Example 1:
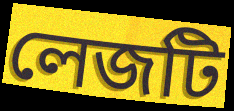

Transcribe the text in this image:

লেজটি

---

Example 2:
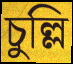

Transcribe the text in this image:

চুল্লি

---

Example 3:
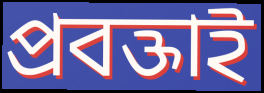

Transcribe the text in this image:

প্রবক্তাই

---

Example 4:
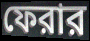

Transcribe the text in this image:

ফেরার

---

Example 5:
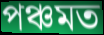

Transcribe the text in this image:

পঞ্চমত